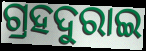
ଗ୍ରହଦୁରାଇ